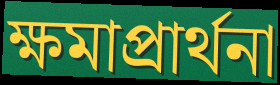
ক্ষমাপ্রার্থনা